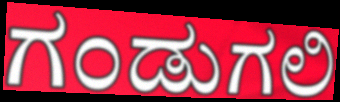
ಗಂಡುಗಲಿ